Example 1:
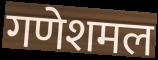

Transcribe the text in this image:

गणेशमल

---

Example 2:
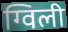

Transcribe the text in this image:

ग्विली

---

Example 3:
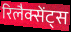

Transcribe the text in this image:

रिलैक्सेंट्स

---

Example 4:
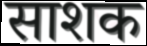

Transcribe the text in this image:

साशक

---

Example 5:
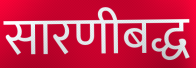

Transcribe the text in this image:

सारणीबद्ध